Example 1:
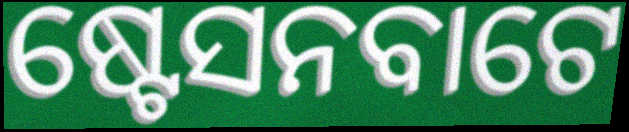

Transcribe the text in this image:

ଷ୍ଟେସନବାଟେ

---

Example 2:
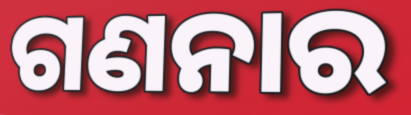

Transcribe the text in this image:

ଗଣନାର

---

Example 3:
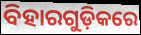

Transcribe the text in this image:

ବିହାରଗୁଡ଼ିକରେ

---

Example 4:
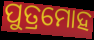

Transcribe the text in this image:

ପୁତ୍ରମୋହ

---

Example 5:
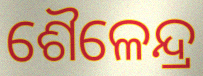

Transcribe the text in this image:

ଶୈଳେନ୍ଦ୍ର